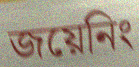
জয়েনিং